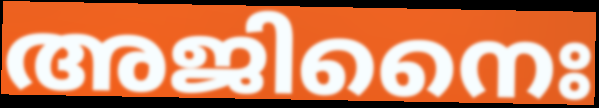
അജിനൈഃ